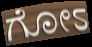
ಗೋಽ